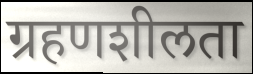
ग्रहणशीलता